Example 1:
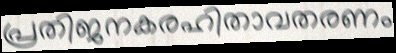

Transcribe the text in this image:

പ്രതിജനകരഹിതാവതരണം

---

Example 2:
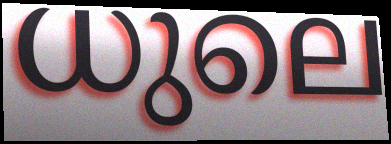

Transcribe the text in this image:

ധുലെ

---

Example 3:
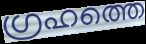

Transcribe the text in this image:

ഗ്രഹത്തെ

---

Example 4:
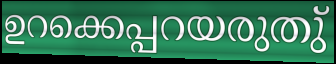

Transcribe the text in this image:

ഉറക്കെപ്പറയരുതു്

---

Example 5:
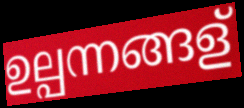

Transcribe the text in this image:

ഉല്പന്നങ്ങള്